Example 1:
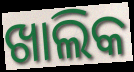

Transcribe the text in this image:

ଖାଲିକ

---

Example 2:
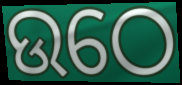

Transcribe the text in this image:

ଉଠେ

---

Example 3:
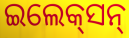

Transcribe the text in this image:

ଇଲେକ୍‌ସନ୍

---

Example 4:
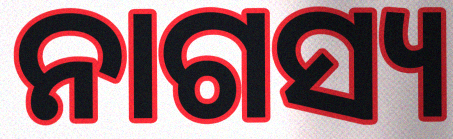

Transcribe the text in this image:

ନାଗସ୍ୟ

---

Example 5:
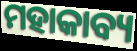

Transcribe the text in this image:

ମହାକାବ୍ୟ